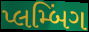
પ્લમ્બિંગ